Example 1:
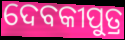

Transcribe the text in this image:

ଦେବକୀପୁତ୍ର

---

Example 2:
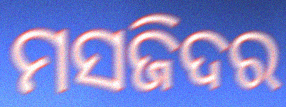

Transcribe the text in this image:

ମସଜିଦର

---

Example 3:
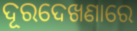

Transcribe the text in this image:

ଦୂରଦେଖଣାରେ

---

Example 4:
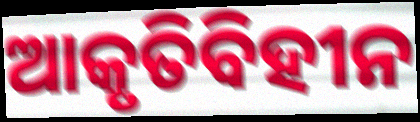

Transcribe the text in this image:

ଆକୃତିବିହୀନ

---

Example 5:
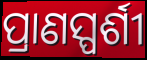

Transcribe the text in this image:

ପ୍ରାଣସ୍ପର୍ଶୀ